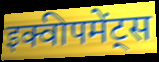
इक्वीपमेंट्स